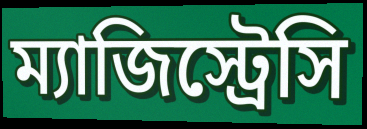
ম্যাজিস্ট্রেসি